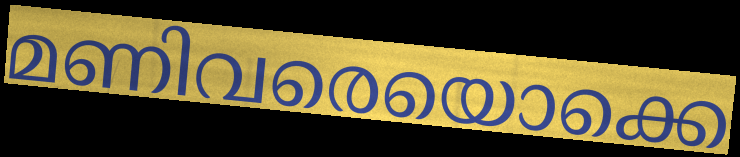
മണിവരെയൊക്കെ